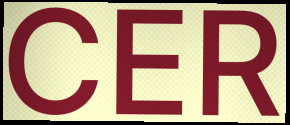
CER